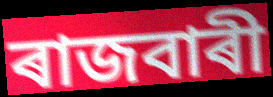
ৰাজবাৰী